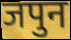
जपुन